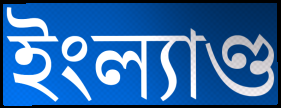
ইংল্যাণ্ড